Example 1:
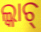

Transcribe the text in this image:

ଲ୍କାଚ୍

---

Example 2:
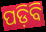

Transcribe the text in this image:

ପଡ଼ିବି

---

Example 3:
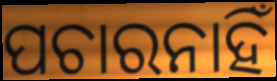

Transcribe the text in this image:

ପଚାରନାହିଁ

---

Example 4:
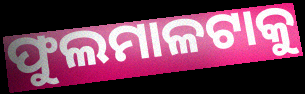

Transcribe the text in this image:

ଫୁଲମାଳଟାକୁ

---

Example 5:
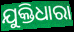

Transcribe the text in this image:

ଯୁକ୍ତିଧାରା